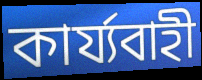
কাৰ্য্যবাহী